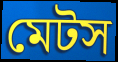
মেটস